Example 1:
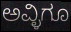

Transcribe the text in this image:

ಅವ್ಳಿಗೂ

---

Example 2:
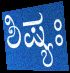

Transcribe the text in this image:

ಶಿಷ್ಯಃ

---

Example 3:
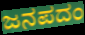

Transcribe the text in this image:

ಜನಪದಂ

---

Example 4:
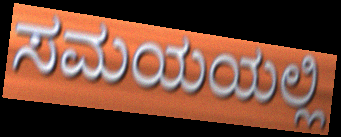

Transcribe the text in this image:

ಸಮಯಯಲ್ಲಿ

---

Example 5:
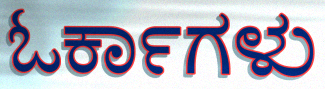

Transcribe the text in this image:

ಓರ್ಕಾಗಳು